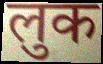
लुक